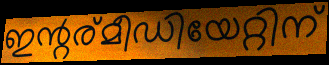
ഇന്റര്മീഡിയേറ്റിന്